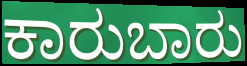
ಕಾರುಬಾರು